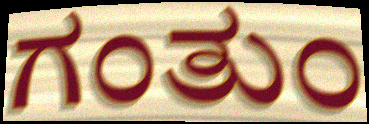
ಗಂತುಂ